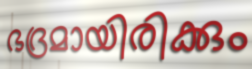
ഭദ്രമായിരിക്കും